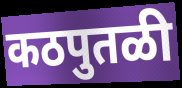
कठपुतळी